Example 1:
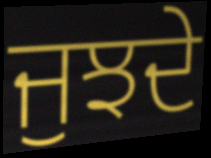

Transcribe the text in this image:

ਜੁਝਦੇ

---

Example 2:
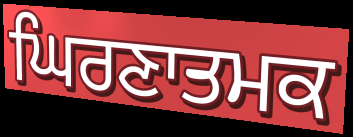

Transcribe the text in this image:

ਘਿਰਣਾਤਮਕ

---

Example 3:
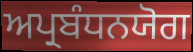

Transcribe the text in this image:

ਅਪ੍ਰਬੰਧਨਯੋਗ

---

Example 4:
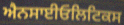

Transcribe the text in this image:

ਐਨਸਾਈਓਲਿਟਿਕਸ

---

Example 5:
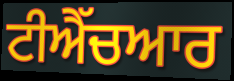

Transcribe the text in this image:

ਟੀਐੱਚਆਰ